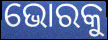
ଭୋରକୁ